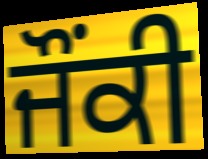
ਜੌਂਕੀ